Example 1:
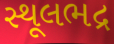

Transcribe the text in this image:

સ્થૂલભદ્ર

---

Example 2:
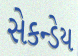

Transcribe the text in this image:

સેકન્ડેય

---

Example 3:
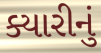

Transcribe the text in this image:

ક્યારીનું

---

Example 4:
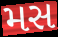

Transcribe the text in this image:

મસ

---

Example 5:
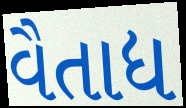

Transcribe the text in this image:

વૈતાદ્ય